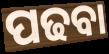
ପଢବା